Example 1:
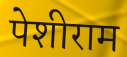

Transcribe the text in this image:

पेशीराम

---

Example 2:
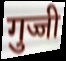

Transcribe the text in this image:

गुज्जी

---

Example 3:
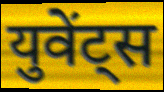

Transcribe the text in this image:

युवेंट्स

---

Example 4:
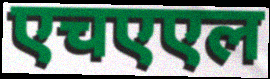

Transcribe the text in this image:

एचएएल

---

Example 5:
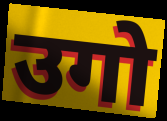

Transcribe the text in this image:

उगो